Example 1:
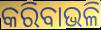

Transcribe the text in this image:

କରିବାଭଳି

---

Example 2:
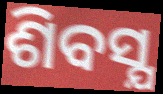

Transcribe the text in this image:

ଶିବସ୍ଯ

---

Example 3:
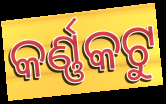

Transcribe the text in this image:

କର୍ଣ୍ଣକଟୁ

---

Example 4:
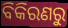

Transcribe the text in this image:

ବିକିରଣରୁ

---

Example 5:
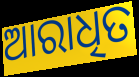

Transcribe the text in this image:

ଆରାଧିତ